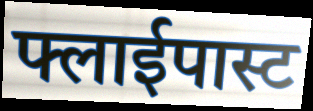
फ्लाईपास्ट